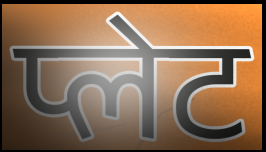
प्‍लेट